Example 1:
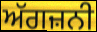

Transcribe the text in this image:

ਅੱਗਜ਼ਨੀ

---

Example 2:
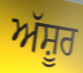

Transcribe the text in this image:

ਅੱਸ਼ੂਰ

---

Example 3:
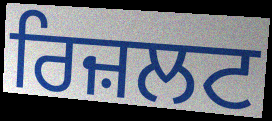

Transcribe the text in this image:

ਰਿਜ਼ਲਟ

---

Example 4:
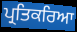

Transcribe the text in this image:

ਪ੍ਰਤਿਕਰਿਆ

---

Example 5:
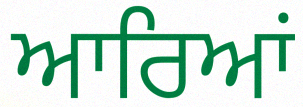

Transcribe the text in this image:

ਆਰਿਆਂ